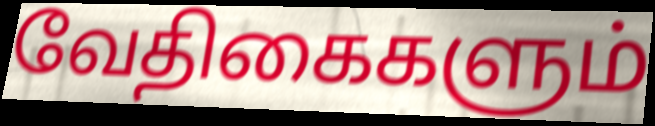
வேதிகைகளும்